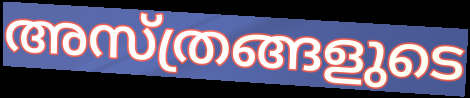
അസ്ത്രങ്ങളുടെ